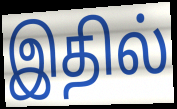
இதில்